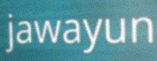
jawayun